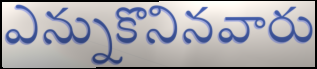
ఎన్నుకొనినవారు